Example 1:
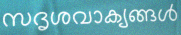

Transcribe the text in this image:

സദൃശവാക്യങ്ങൾ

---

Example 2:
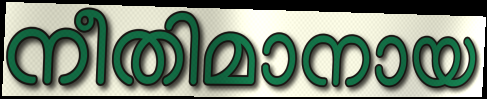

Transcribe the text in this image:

നീതിമാനായ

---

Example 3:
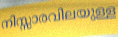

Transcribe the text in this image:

നിസ്സാരവിലയുള്ള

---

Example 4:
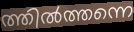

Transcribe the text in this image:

ത്തിൽത്തന്നെ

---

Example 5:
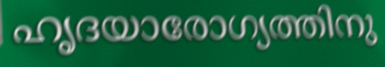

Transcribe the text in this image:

ഹൃദയാരോഗ്യത്തിനു